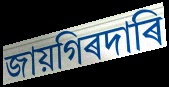
জায়গিৰদাৰি